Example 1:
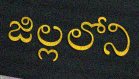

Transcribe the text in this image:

జిల్లలోని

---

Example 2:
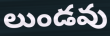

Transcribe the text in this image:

లుండవు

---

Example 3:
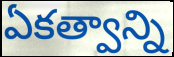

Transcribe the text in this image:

ఏకత్వాన్ని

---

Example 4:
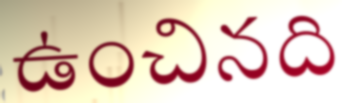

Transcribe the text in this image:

ఉంచినది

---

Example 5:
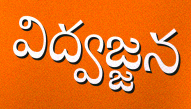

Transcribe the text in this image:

విద్వజ్జన